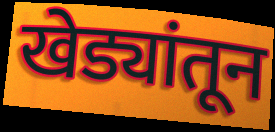
खेड्यांतून